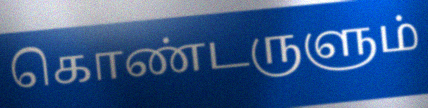
கொண்டருளும்